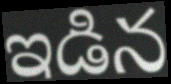
ఇడిన